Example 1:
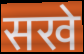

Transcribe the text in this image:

सखे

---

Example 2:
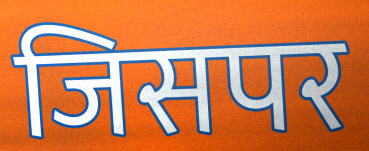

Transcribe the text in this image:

जिसपर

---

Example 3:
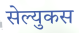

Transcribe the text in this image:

सेल्युकस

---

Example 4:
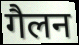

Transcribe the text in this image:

गैलन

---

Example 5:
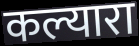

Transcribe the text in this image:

कल्यारा